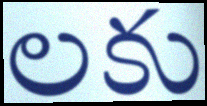
లకు